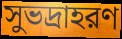
সুভদ্রাহরণ